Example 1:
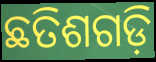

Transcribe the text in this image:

ଛତିଶଗଡ଼ି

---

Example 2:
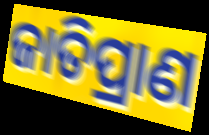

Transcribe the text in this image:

ଜାତିପ୍ରାଣ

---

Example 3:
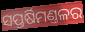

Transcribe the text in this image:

ସପ୍ତର୍ଷିମଣ୍ତଳର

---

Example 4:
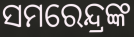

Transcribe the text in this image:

ସମରେନ୍ଦ୍ରଙ୍କ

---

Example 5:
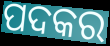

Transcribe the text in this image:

ପଦକର